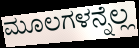
ಮೂಲಗಳನ್ನೆಲ್ಲ